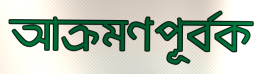
আক্রমণপূর্বক